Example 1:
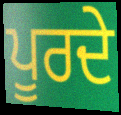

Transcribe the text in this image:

ਪੂਰਦੇ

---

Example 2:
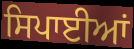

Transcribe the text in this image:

ਸਿਪਾਈਆਂ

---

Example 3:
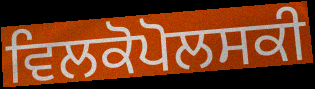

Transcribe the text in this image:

ਵਿਲਕੋਪੋਲਸਕੀ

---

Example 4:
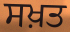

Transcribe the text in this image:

ਸਖ਼ਤ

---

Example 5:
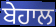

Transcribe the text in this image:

ਬੇਹਾਲ